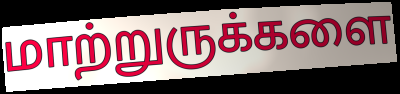
மாற்றுருக்களை